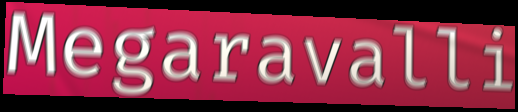
Megaravalli